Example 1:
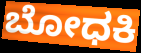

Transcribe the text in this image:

ಬೋಧಕಿ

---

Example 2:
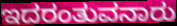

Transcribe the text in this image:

ಇದರಂತುವನಾರು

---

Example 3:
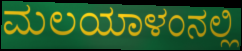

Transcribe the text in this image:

ಮಲಯಾಳಂನಲ್ಲಿ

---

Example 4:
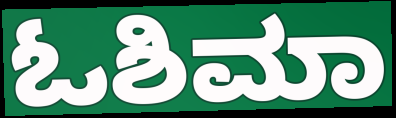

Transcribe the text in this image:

ಓಶಿಮಾ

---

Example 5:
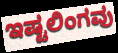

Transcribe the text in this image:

ಇಷ್ಟಲಿಂಗವು